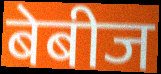
बेबीज